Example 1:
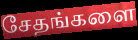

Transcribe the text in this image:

சேதங்களை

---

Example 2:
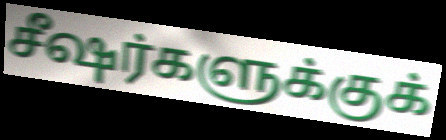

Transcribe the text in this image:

சீஷர்களுக்குக்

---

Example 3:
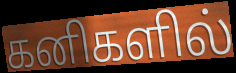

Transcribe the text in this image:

கனிகளில்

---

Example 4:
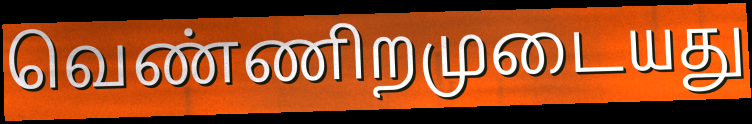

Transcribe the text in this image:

வெண்ணிறமுடையது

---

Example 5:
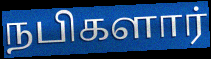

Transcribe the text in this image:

நபிகளார்